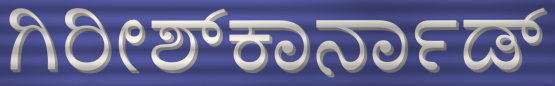
ಗಿರೀಶ್‌ಕಾರ್ನಾಡ್